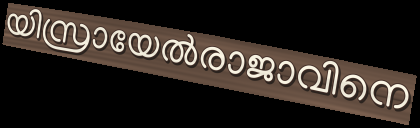
യിസ്രായേൽരാജാവിനെ